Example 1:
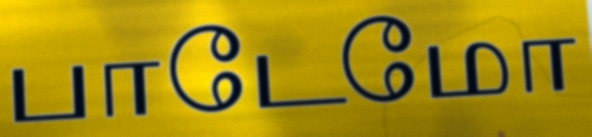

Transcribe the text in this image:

பாடேமோ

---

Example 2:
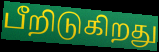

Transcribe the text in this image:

பீறிடுகிறது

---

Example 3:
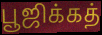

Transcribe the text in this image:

பூஜிக்கத்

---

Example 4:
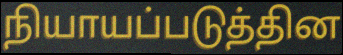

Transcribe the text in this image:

நியாயப்படுத்தின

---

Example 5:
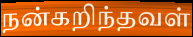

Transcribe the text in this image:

நன்கறிந்தவள்